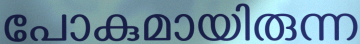
പോകുമായിരുന്ന